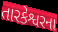
તારકેશ્વરના